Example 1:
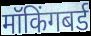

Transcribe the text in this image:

मॉकिंगबर्ड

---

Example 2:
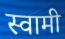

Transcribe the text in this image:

स्वामी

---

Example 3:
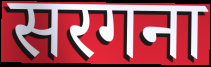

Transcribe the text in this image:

सरगना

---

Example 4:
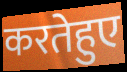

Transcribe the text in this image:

करतेहुए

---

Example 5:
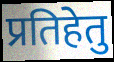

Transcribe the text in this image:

प्रतिहेतु